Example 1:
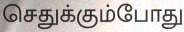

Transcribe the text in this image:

செதுக்கும்போது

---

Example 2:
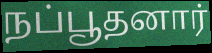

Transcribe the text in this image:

நப்பூதனார்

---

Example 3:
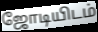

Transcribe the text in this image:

ஜோடியிடம்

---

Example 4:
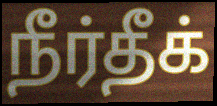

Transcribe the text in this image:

நீர்தீக்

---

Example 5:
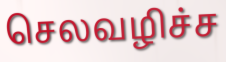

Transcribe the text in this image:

செலவழிச்ச